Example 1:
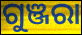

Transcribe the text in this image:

ଗୁଞ୍ଜରା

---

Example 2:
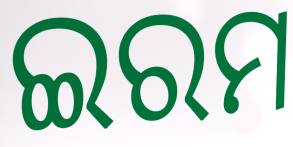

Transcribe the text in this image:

ଇରମ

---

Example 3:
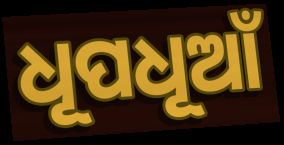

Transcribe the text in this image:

ଧୂପଧୂଆଁ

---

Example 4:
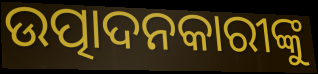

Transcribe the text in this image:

ଉତ୍ପାଦନକାରୀଙ୍କୁ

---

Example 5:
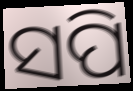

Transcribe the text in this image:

ସପି